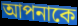
আপনাকে